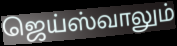
ஜெய்ஸ்வாலும்